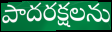
పాదరక్షలను